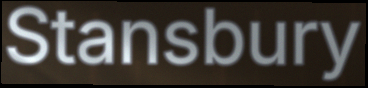
Stansbury